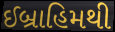
ઈબ્રાહિમથી